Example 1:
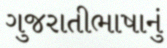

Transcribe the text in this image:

ગુજરાતીભાષાનું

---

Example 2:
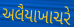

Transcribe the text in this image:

અલૈયાખાચરે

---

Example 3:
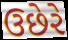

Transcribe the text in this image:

ઉછેરે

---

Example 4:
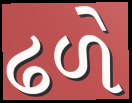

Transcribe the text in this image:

ઢળે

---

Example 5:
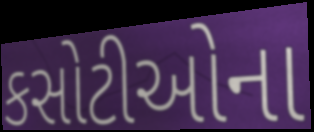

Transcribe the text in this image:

કસોટીઓના